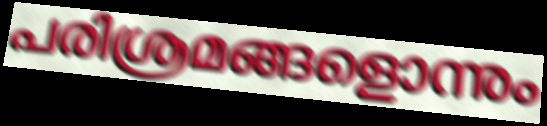
പരിശ്രമങ്ങളൊന്നും